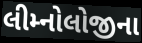
લીમ્નોલોજીના